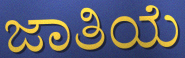
ಜಾತಿಯೆ